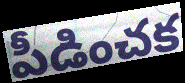
పీడించక